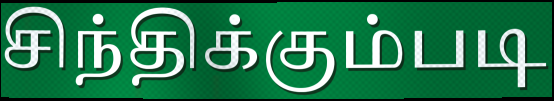
சிந்திக்கும்படி